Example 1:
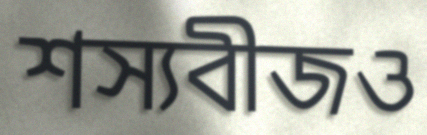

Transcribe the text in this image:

শস্যবীজও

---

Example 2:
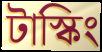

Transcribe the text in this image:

টাস্কিং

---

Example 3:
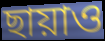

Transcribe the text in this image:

ছায়াও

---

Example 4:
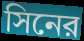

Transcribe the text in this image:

সিনের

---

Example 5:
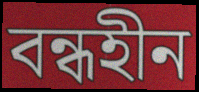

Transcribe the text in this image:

বন্ধহীন